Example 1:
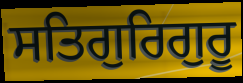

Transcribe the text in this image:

ਸਤਿਗੁਰਿਗੁਰੂ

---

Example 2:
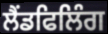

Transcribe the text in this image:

ਲੈਂਡਫਿਲਿੰਗ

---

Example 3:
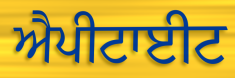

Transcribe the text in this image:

ਐਪੀਟਾਈਟ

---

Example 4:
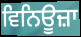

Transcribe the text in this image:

ਵਿਨਿਊਜ਼ਾ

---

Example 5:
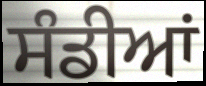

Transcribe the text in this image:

ਸੰਡੀਆਂ